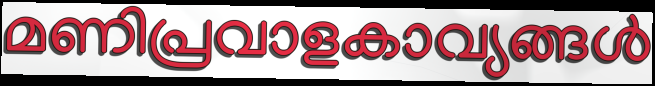
മണിപ്രവാളകാവ്യങ്ങൾ